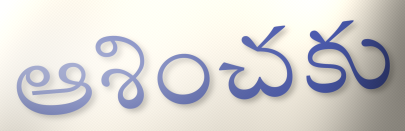
ఆశించకు